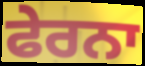
ਫੇਰਨਾ